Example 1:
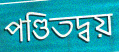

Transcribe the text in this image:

পণ্ডিতদ্বয়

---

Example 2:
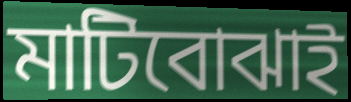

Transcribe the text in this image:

মাটিবোঝাই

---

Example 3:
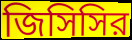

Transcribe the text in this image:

জিসিসির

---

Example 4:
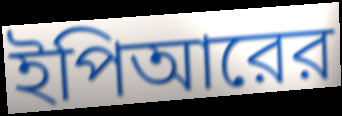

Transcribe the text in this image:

ইপিআরের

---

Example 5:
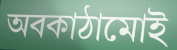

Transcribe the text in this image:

অবকাঠামোই